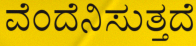
ವೆಂದೆನಿಸುತ್ತದೆ